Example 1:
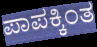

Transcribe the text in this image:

ಪಾಪಕ್ಕಿಂತ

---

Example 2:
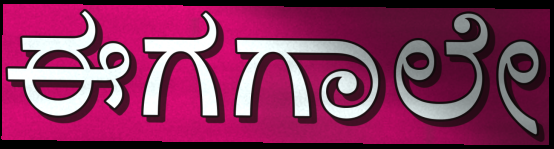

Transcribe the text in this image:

ಈಗಗಾಲೇ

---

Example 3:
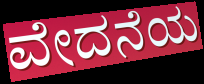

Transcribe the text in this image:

ವೇದನೆಯ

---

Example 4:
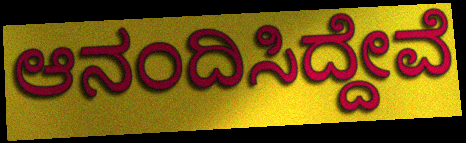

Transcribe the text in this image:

ಆನಂದಿಸಿದ್ದೇವೆ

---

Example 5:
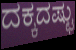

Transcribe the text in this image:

ದಕ್ಕದಷ್ಟು